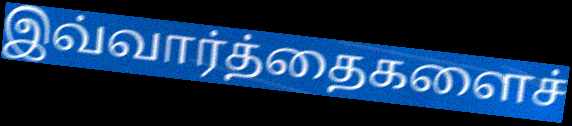
இவ்வார்த்தைகளைச்